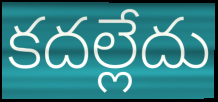
కదల్లేదు